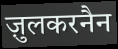
ज़ुलकरनैन